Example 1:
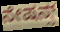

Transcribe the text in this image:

ನೇಷನ್ಸ್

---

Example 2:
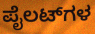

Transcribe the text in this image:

ಪೈಲಟ್‌ಗಳ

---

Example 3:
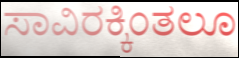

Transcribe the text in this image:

ಸಾವಿರಕ್ಕಿಂತಲೂ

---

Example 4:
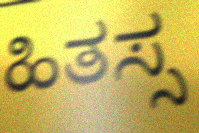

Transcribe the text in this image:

ಹಿತಸ್ಸ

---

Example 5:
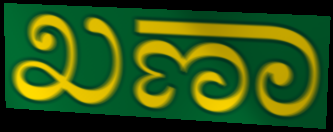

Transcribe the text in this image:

ಖಣಾ